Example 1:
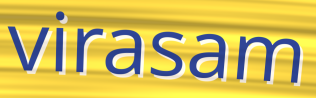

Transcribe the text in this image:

virasam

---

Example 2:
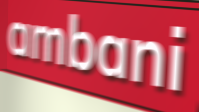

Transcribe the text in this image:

ambani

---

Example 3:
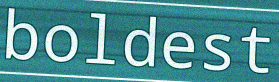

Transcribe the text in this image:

boldest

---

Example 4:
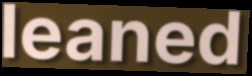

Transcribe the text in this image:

leaned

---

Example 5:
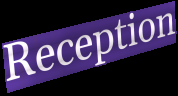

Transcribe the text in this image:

Reception